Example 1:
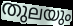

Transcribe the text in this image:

തുലയും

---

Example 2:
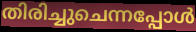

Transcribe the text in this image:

തിരിച്ചുചെന്നപ്പോൾ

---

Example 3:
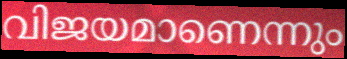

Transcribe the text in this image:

വിജയമാണെന്നും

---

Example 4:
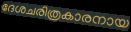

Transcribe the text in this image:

ദേശചരിത്രകാരനായ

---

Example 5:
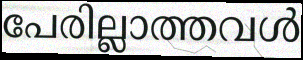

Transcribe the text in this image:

പേരില്ലാത്തവൾ